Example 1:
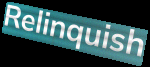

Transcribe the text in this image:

Relinquish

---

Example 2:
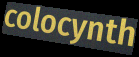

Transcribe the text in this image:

colocynth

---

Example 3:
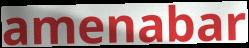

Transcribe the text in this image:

amenabar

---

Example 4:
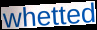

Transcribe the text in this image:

whetted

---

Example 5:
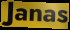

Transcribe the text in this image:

Janas